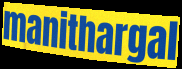
manithargal